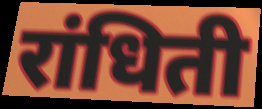
रांधिती